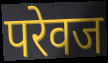
परेवज